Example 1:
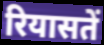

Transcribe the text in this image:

रियासतें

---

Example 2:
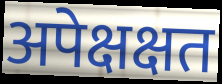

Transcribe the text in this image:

अपेक्षक्षत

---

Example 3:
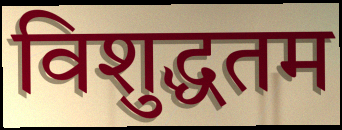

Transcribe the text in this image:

विशुद्धतम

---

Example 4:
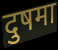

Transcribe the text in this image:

दुषमा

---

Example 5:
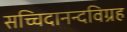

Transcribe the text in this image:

सच्चिदानन्दविग्रह